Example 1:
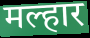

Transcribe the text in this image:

मल्हार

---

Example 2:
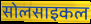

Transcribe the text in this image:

सोलसाइकल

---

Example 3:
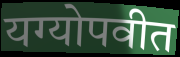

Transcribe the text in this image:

यग्योपवीत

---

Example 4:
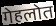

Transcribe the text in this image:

गेहलोत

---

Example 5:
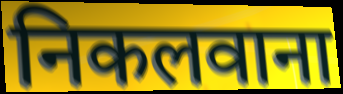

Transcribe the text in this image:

निकलवाना